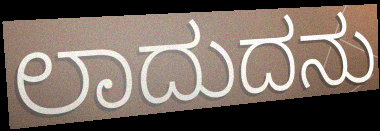
ಲಾದುದನು